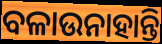
ବଳାଉନାହାନ୍ତି